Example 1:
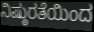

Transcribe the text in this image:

ನಿಷ್ಠುರತೆಯಿಂದ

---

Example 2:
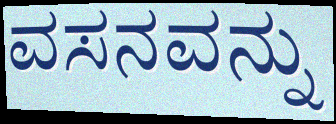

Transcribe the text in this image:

ವಸನವನ್ನು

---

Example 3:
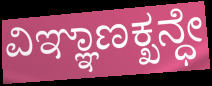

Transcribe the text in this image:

ವಿಞ್ಞಾಣಕ್ಖನ್ಧೇ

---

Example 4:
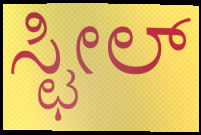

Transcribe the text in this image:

ಸ್ಟೀಲ್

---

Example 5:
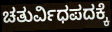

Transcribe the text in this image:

ಚತುರ್ವಿಧಪದಕ್ಕೆ